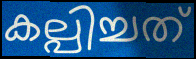
കല്പിച്ചത്